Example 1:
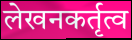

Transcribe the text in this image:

लेखनकर्तृत्व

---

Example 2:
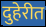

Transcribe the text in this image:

दुहेरीत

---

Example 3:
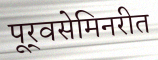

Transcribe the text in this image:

पूर्वसेमिनरीत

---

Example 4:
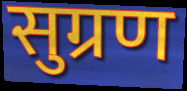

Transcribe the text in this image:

सुग्रण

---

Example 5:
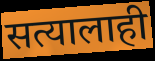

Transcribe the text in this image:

सत्यालाही